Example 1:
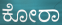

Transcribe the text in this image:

ಕೋರಾ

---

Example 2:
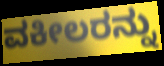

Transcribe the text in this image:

ವಕೀಲರನ್ನು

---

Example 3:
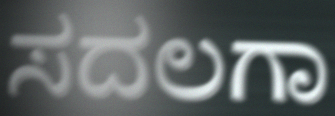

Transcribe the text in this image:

ಸದಲಗಾ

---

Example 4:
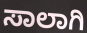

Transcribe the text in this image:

ಸಾಲಾಗಿ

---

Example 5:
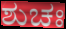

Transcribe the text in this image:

ಶುಚಃ